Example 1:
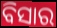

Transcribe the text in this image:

ବିସାର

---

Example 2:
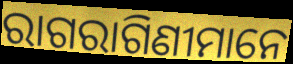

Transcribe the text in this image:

ରାଗରାଗିଣୀମାନେ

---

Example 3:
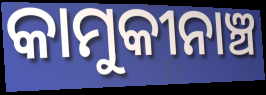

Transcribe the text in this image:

କାମୁକୀନାଞ୍ଚ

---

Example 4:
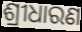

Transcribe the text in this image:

ଶ୍ରୀଧାରଣ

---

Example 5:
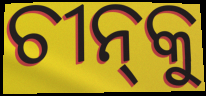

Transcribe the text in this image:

ଚୀନ୍‌କୁ